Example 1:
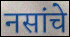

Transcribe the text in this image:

नसांचे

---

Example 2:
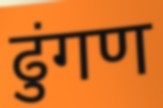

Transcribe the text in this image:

ढुंगण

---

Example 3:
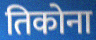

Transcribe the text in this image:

तिकोना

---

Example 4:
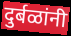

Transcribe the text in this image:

दुर्बळांनी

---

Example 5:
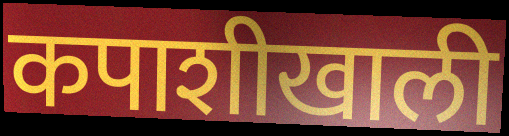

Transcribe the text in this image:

कपाशीखाली